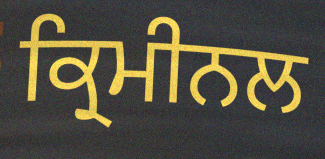
ਕ੍ਰਿਮੀਨਲ